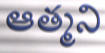
ఆత్మని